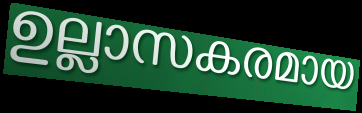
ഉല്ലാസകരമായ